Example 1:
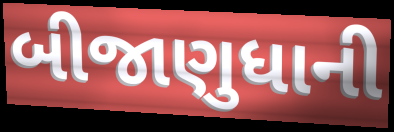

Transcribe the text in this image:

બીજાણુધાની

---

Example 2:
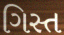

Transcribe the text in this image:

ગિસ્ત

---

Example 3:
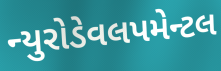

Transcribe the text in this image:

ન્યુરોડેવલપમેન્ટલ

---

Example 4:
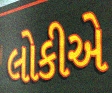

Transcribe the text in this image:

લોકીએ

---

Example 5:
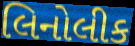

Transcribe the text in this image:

લિનોલીક